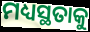
ମଧ୍ୟସ୍ଥତାକୁ